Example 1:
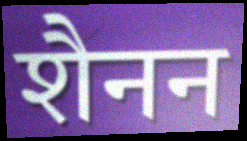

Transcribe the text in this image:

शैनन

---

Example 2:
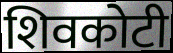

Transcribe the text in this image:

शिवकोटी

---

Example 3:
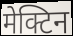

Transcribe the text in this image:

मेक्टिन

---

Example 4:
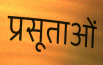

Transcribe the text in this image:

प्रसूताओं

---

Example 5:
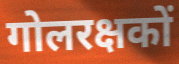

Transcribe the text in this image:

गोलरक्षकों